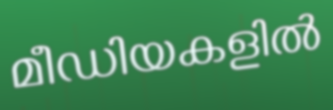
മീഡിയകളിൽ